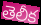
తెలీక